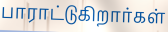
பாராட்டுகிறார்கள்